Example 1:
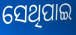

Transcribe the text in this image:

ସେଥିପାଇ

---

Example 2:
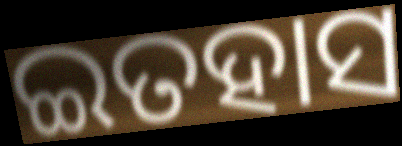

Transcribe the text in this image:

ଇତହାସ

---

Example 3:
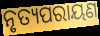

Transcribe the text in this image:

ନୃତ୍ୟପରାୟଣ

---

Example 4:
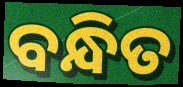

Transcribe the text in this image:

ବନ୍ଧିତ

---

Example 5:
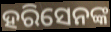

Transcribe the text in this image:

ହରିସେନଙ୍କ